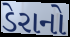
ડેરાનો